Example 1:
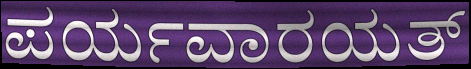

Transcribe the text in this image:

ಪರ್ಯವಾರಯತ್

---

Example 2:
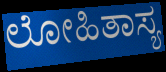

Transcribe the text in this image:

ಲೋಹಿತಾಸ್ಯ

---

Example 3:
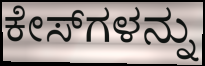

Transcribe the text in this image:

ಕೇಸ್‌ಗಳನ್ನು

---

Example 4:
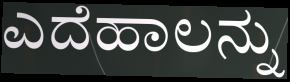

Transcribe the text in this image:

ಎದೆಹಾಲನ್ನು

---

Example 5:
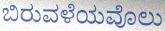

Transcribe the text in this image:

ಬಿರುವಳೆಯವೊಲು